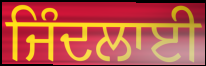
ਜਿੰਦਲਾਈ